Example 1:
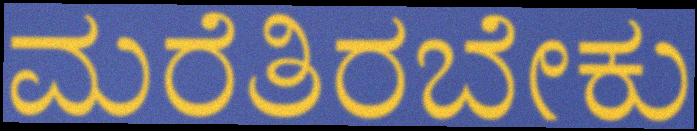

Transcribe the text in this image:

ಮರೆತಿರಬೇಕು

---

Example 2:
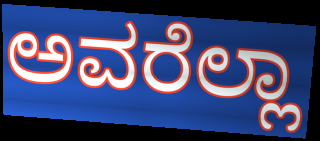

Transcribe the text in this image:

ಅವರೆಲ್ಲಾ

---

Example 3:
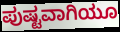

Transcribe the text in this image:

ಪುಷ್ಟವಾಗಿಯೂ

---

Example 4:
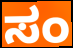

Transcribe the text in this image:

ಸಂ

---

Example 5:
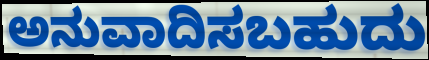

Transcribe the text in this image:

ಅನುವಾದಿಸಬಹುದು